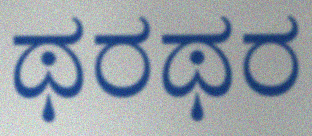
ಥರಥರ